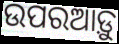
ଉପରଆଡ଼ୁ